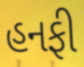
હનફી